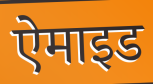
ऐमाइड